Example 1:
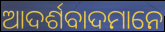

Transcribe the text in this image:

ଆଦର୍ଶବାଦମାନେ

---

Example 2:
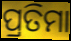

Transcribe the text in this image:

ପ୍ରତିମା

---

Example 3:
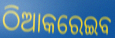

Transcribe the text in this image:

ଠିଆକରେଇବ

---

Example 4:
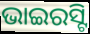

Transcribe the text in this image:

ଭାଇରସ୍ଟି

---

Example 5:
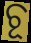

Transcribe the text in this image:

ଚୂ